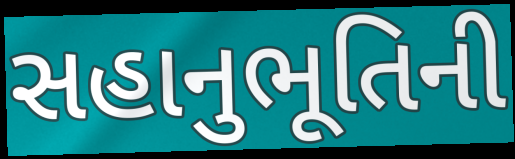
સહાનુભૂતિની